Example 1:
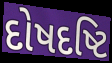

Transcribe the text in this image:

દોષદષ્ટિ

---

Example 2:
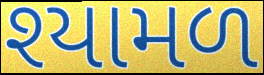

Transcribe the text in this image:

શ્યામળ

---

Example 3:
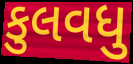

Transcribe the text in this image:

કુલવધુ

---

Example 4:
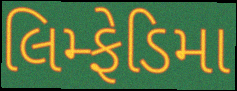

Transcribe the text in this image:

લિમ્ફેડિમા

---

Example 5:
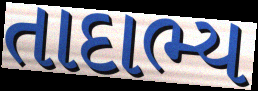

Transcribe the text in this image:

તાદાભ્ય